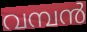
വമ്പൻ